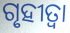
ଗୃହୀତ୍ଵା